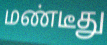
மண்டீது